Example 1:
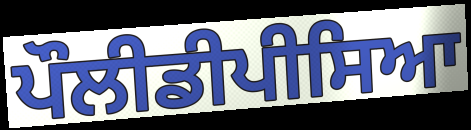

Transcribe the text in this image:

ਪੌਲੀਡੀਪੀਸਿਆ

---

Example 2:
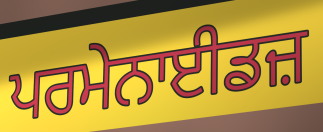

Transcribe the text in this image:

ਪਰਮੇਨਾਈਡਜ਼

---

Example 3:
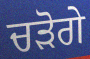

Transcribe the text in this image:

ਚੜੋਗੇ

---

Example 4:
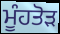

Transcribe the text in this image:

ਮੂੰਹਤੋੜ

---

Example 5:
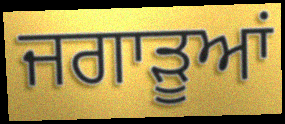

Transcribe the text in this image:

ਜਗਾੜੂਆਂ